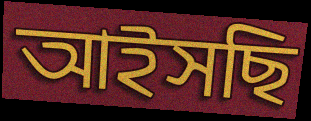
আইসছি